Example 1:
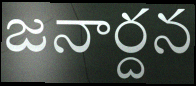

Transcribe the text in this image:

జనార్దన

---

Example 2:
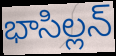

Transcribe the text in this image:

భాసిల్లన్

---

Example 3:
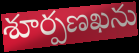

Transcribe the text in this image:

శూర్పణఖను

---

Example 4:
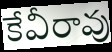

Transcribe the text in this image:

కేవీరావు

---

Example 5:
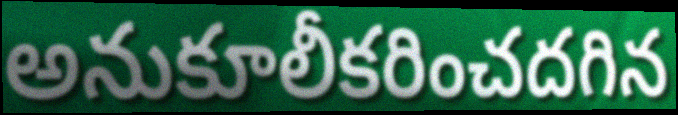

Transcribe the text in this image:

అనుకూలీకరించదగిన